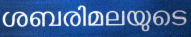
ശബരിമലയുടെ